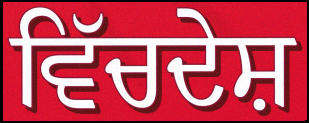
ਵਿੱਚਦੇਸ਼